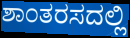
ಶಾಂತರಸದಲ್ಲಿ